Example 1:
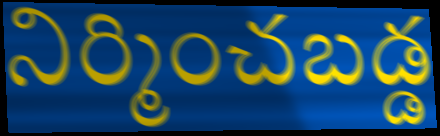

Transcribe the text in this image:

నిర్మించబడ్డ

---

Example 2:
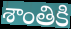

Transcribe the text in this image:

శాంతికి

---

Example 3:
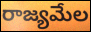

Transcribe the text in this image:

రాజ్యమేల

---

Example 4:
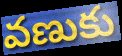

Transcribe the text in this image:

వణుకు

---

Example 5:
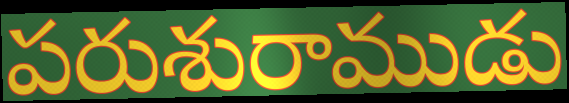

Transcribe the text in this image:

పరుశురాముడు